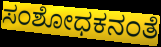
ಸಂಶೋಧಕನಂತೆ